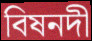
বিষনদী